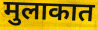
मुलाकात